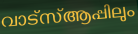
വാട്സ്ആപ്പിലും